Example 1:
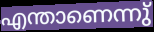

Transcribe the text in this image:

എന്താണെന്നു്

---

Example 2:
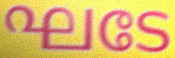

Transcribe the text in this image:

ഘടേ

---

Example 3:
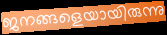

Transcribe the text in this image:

ജനങ്ങളെയായിരുന്നു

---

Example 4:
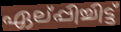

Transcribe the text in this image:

ഏല്പ്പിച്ചിട്ട്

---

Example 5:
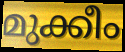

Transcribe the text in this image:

മുക്കീം